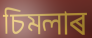
চিমলাৰ